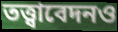
তত্ত্বাবেদনও